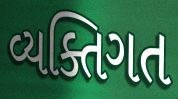
વ્યક્તિગત